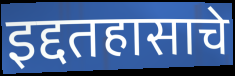
इद्दतहासाचे